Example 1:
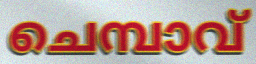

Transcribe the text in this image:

ചെമ്പാവ്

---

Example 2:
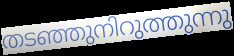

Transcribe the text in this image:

തടഞ്ഞുനിറുത്തുന്നു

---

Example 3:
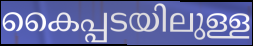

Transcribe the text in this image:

കൈപ്പടയിലുള്ള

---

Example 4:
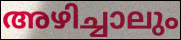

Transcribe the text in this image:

അഴിച്ചാലും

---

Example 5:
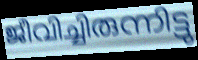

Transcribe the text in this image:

ജീവിച്ചിരുന്നിട്ടു